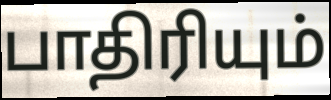
பாதிரியும்